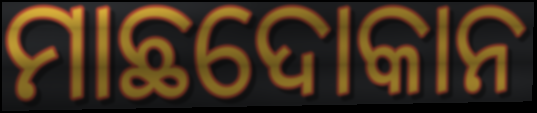
ମାଛଦୋକାନ